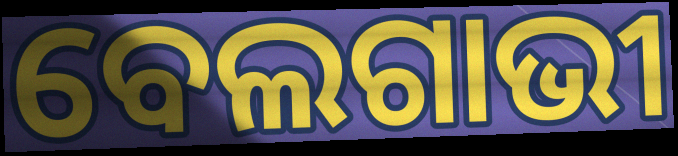
ବେଲଗାଭୀ